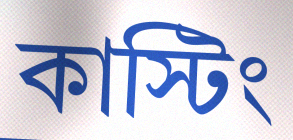
কাস্টিং